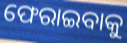
ଫେରାଇବାକୁ